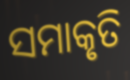
ସମାକୃତି